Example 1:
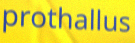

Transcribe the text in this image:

prothallus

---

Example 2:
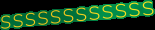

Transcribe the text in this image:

ssssssssssss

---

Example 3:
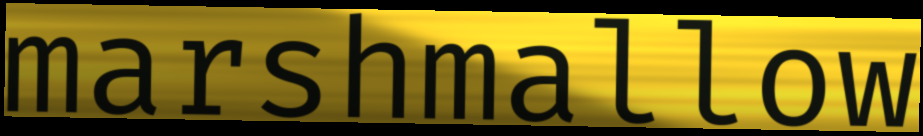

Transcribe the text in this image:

marshmallow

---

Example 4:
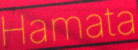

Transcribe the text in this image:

Hamata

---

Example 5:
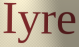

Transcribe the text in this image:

Iyre